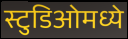
स्टुडिओमध्ये